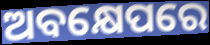
ଅବକ୍ଷେପରେ